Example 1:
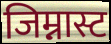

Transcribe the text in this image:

जिम्नास्ट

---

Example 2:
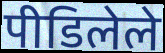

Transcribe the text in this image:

पीडिलेले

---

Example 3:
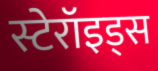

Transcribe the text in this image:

स्टेरॉइड्स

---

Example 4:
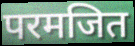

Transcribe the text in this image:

परमजित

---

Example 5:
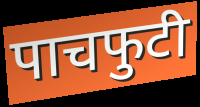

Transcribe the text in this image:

पाचफुटी